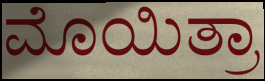
ಮೊಯಿತ್ರಾ